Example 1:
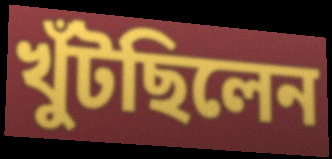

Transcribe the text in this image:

খুঁটছিলেন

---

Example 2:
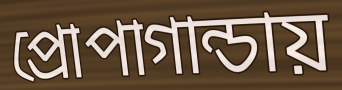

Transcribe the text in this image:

প্রোপাগান্ডায়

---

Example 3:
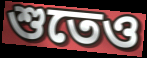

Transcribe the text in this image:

শুতেও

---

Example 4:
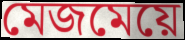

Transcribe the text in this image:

মেজমেয়ে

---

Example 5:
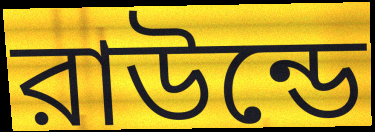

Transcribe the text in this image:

রাউন্ডে